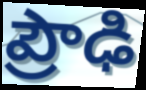
ప్రౌఢి